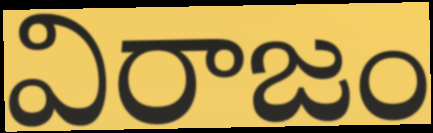
విరాజం